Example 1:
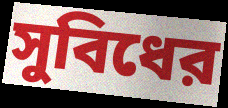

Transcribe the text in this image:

সুবিধের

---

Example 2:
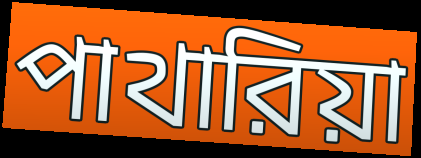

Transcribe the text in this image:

পাথারিয়া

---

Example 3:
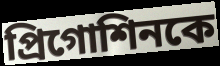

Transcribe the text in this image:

প্রিগোশিনকে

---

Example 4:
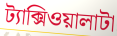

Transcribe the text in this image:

ট্যাক্সিওয়ালাটা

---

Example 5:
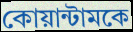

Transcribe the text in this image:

কোয়ান্টামকে